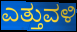
ಎತ್ತುವಳಿ